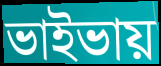
ভাইভায়